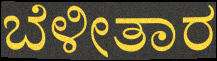
ಬೆಳೀತಾರ